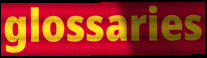
glossaries